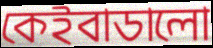
কেইবাডালো